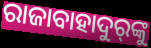
ରାଜାବାହାଦୁର୍‍ଙ୍କୁ